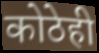
कोठेही